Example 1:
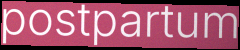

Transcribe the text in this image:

postpartum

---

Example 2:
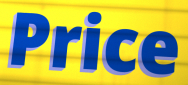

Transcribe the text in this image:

Price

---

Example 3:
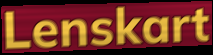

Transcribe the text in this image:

Lenskart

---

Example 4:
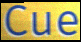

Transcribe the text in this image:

Cue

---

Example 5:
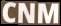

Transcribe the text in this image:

CNM